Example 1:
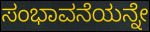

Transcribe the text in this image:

ಸಂಭಾವನೆಯನ್ನೇ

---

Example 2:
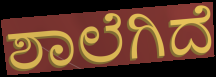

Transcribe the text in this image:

ಶಾಲೆಗಿದೆ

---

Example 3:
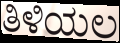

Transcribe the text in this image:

ತಿಳಿಯಲ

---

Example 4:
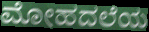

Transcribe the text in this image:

ಮೋಹದಲೆಯ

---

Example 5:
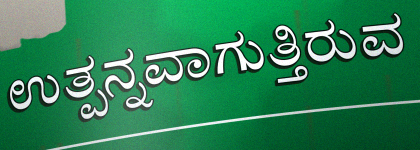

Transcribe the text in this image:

ಉತ್ಪನ್ನವಾಗುತ್ತಿರುವ